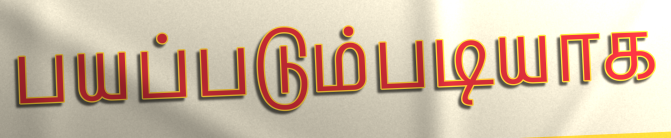
பயப்படும்படியாக